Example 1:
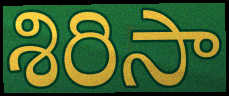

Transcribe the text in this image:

శిరిసా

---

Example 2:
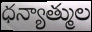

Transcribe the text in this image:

ధన్యాత్ముల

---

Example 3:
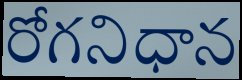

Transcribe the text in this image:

రోగనిధాన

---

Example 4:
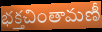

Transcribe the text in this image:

భక్తచింతామణీ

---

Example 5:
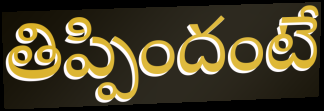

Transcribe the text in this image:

తిప్పిందంటే